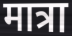
मात्रा